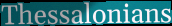
Thessalonians